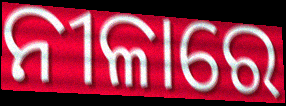
ନୀଳାରେ